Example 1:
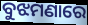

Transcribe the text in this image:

ବୁଝମଣାରେ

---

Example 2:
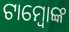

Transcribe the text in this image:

ଟାମ୍ବୋଙ୍କ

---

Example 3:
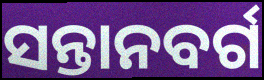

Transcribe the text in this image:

ସନ୍ତାନବର୍ଗ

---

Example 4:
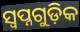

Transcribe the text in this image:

ସ୍ୱପ୍ନଗୁଡ଼ିକ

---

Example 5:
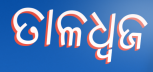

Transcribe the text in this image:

ତାଳଧ୍ୱଜ